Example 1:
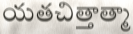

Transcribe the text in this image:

యతచిత్తాత్మా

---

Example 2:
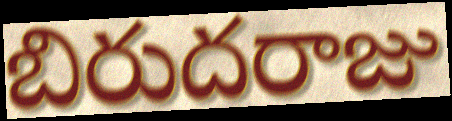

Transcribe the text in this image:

బిరుదరాజు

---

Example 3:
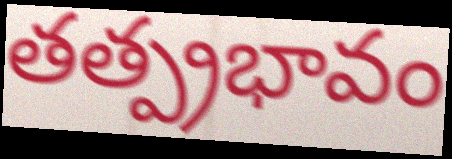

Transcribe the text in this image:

తత్ప్రభావం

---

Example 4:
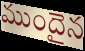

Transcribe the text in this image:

ముందైన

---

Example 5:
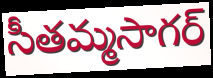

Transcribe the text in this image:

సీతమ్మసాగర్